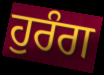
ਹੁਰੰਗ